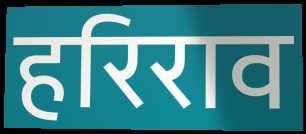
हरिराव